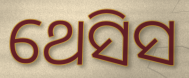
ଥେସିସ